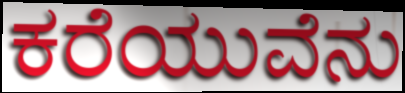
ಕರೆಯುವೆನು